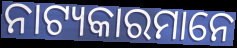
ନାଟ୍ୟକାରମାନେ